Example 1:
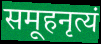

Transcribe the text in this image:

समूहनृत्यं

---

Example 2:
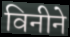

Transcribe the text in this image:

विनीने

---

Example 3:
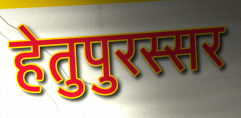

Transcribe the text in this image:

हेतुपुरस्सर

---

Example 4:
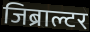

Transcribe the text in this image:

जिब्राल्टर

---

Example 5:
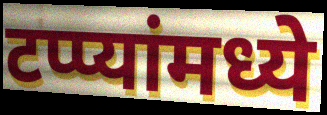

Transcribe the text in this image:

टप्प्यांमध्ये